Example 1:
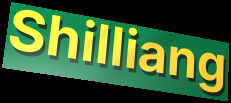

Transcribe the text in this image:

Shilliang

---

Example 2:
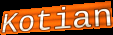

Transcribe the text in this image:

Kotian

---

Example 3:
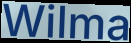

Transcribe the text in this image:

Wilma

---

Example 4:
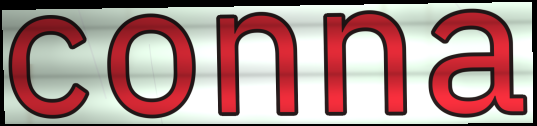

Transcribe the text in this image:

conna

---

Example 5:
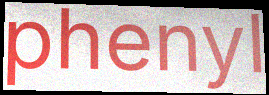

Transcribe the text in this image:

phenyl